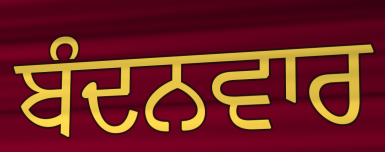
ਬੰਦਨਵਾਰ